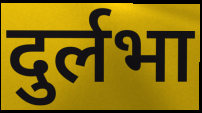
दुर्लभा